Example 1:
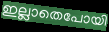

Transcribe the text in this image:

ഇല്ലാതെപോയി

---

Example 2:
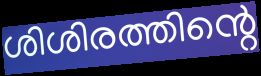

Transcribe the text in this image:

ശിശിരത്തിന്റെ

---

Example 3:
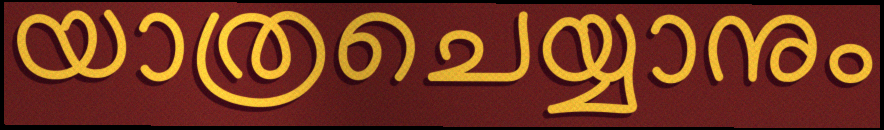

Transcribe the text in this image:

യാത്രചെയ്യാനും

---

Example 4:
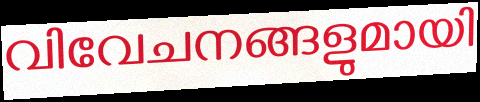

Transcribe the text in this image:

വിവേചനങ്ങളുമായി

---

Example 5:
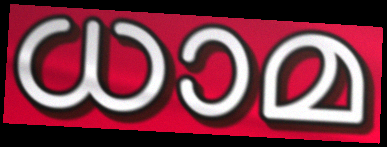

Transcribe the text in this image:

ധാമ